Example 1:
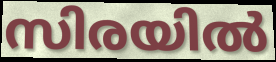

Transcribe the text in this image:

സിരയിൽ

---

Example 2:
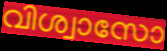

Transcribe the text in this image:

വിശ്വാസോ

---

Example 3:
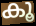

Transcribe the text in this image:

കൂ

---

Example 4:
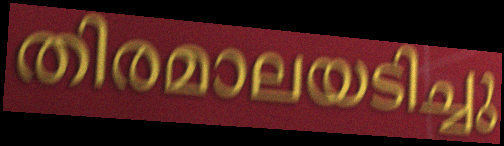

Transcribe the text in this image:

തിരമാലയടിച്ചു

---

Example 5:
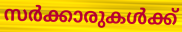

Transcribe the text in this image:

സർക്കാരുകൾക്ക്